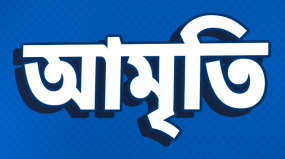
আমৃতি